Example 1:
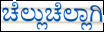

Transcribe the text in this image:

ಚೆಲ್ಲುಚೆಲ್ಲಾಗಿ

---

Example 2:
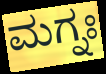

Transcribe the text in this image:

ಮಗ್ನಃ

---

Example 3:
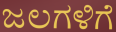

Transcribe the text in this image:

ಜಲಗಳಿಗೆ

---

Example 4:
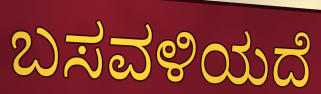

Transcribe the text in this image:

ಬಸವಳಿಯದೆ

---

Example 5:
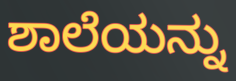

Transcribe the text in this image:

ಶಾಲೆಯನ್ನು